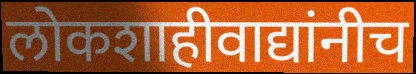
लोकशाहीवाद्यांनीच